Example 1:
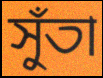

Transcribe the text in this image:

সুঁতা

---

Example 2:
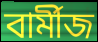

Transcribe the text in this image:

বাৰ্মীজ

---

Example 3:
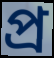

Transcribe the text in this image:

প্ৰ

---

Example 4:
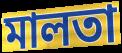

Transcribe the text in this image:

মালতা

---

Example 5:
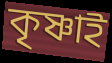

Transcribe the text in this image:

কৃষ্ণাই